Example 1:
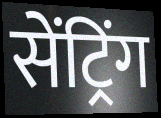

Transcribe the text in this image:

सेंट्रिंग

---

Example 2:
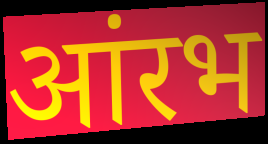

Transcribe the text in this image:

आंरभ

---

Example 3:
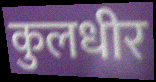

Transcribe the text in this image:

कुलधीर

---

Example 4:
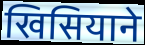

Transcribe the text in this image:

खिसियाने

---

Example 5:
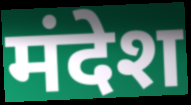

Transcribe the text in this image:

मंदेश